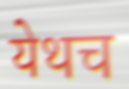
येथच